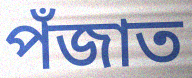
পঁজাত